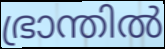
ഭ്രാന്തിൽ